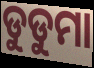
ଡୁଡୁମା